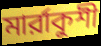
মার্রাকুশী